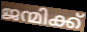
ജന്മിക്ക്